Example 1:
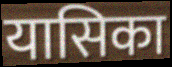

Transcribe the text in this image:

यासिका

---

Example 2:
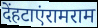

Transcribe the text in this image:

देंहटाएंरामराम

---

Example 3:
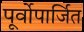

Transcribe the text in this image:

पूर्वोपार्जित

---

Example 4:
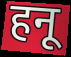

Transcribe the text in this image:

हनू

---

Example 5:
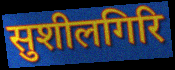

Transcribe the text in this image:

सुशीलगिरि